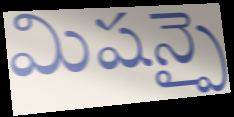
మిషన్పై